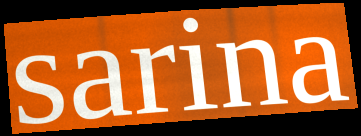
sarina